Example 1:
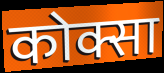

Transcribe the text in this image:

कोक्सा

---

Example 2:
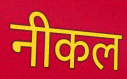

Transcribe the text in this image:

नीकल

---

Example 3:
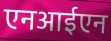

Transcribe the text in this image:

एनआईएन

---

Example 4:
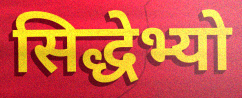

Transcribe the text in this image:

सिद्धेभ्यो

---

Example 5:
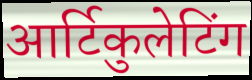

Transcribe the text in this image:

आर्टिकुलेटिंग